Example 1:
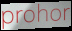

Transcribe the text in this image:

prohor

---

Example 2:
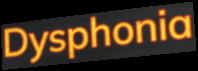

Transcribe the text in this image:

Dysphonia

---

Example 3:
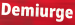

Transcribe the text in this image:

Demiurge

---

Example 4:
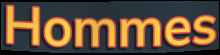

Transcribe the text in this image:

Hommes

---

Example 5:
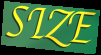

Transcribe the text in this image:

SIZE